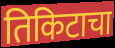
तिकिटाचा